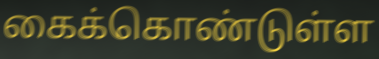
கைக்கொண்டுள்ள